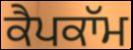
ਕੈਪਕਾੱਮ